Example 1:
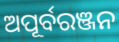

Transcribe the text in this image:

ଅପୂର୍ବରଞ୍ଜନ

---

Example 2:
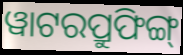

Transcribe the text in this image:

ୱାଟରପ୍ରୁଫିଙ୍ଗ୍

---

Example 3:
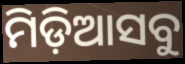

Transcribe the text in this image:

ମିଡ଼ିଆସବୁ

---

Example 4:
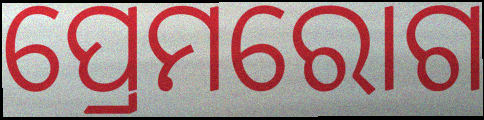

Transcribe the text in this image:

ପ୍ରେମରୋଗ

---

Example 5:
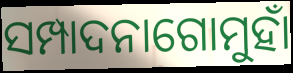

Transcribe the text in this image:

ସମ୍ପାଦନାଗୋମୁହାଁ